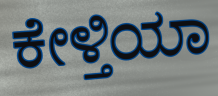
ಕೇಳ್ತಿಯಾ